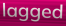
lagged